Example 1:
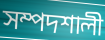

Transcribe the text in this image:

সম্পদশালী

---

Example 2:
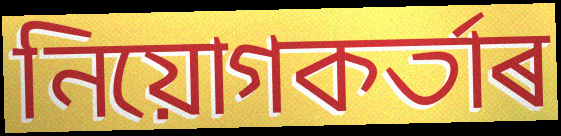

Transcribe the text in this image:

নিয়োগকৰ্তাৰ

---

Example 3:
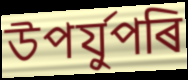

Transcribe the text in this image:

উপৰ্যুপৰি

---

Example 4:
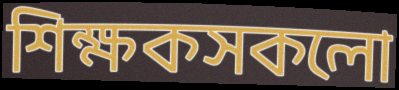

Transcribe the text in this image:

শিক্ষকসকলো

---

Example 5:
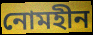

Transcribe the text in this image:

নোমহীন